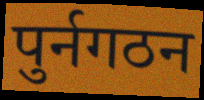
पुर्नगठन